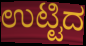
ಉಟ್ಟಿದ